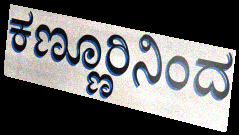
ಕಣ್ಣೂರಿನಿಂದ